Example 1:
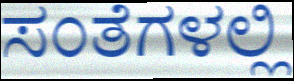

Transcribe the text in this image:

ಸಂತೆಗಳಲ್ಲಿ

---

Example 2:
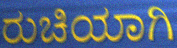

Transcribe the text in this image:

ರುಚಿಯಾಗಿ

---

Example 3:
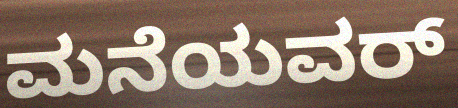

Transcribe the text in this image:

ಮನೆಯವರ್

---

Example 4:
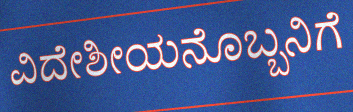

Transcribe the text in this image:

ವಿದೇಶೀಯನೊಬ್ಬನಿಗೆ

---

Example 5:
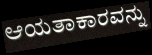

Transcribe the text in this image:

ಆಯತಾಕಾರವನ್ನು